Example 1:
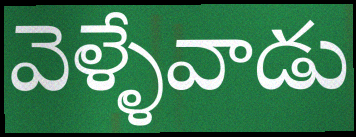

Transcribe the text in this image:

వెళ్ళేవాడు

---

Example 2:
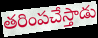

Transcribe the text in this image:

తరింపచేస్తాడు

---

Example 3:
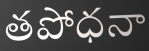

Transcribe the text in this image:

తపోధనా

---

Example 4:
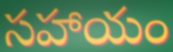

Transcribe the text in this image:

సహాయం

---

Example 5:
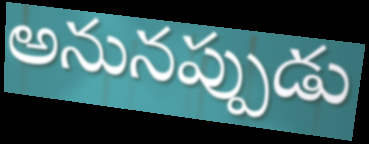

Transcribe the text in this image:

అనునప్పుడు